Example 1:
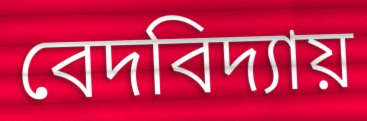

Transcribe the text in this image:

বেদবিদ্যায়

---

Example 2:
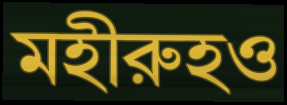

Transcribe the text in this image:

মহীরুহও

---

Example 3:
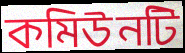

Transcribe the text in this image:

কমিউনটি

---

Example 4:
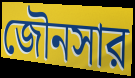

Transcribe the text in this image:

জৌনসার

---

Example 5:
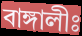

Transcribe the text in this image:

বাঙ্গালীঃ